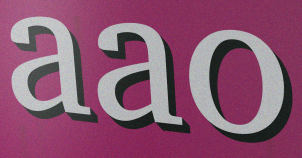
aao